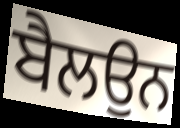
ਬੈਲਉਨ